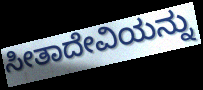
ಸೀತಾದೇವಿಯನ್ನು